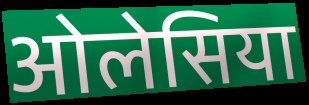
ओलेसिया